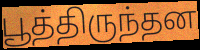
பூத்திருந்தன